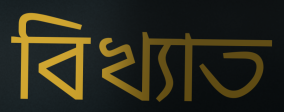
বিখ্যাত